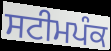
ਸਟੀਮਪੰਕ